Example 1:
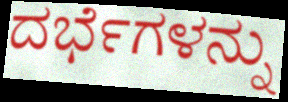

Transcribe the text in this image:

ದರ್ಭೆಗಳನ್ನು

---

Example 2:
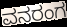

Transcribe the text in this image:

ವನರಂಗ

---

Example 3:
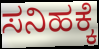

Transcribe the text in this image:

ಸನಿಹಕ್ಕೆ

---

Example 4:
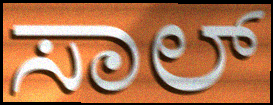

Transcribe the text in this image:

ಸಾಲ್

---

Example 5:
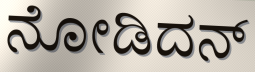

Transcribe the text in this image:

ನೋಡಿದನ್